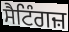
ਸੈਟਿੰਗਜ਼